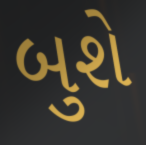
બુશે